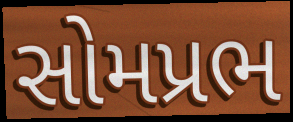
સોમપ્રભ